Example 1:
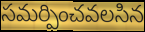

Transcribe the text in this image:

సమర్పించవలసిన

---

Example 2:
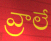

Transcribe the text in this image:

వ్రాలే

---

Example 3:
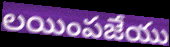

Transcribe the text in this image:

లయింపజేయు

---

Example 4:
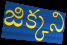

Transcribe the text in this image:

జిక్కని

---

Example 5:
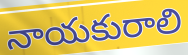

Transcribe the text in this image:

నాయకురాలి